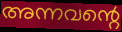
അന്നവന്റെ